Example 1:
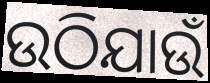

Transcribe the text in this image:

ଉଠିଯାଉଁ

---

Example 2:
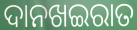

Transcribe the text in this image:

ଦାନଖଇରାତ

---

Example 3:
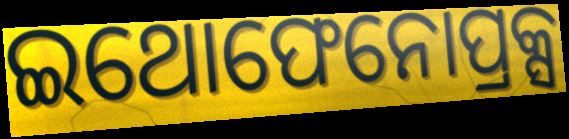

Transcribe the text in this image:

ଇଥୋଫେନୋପ୍ରକ୍ସ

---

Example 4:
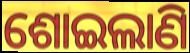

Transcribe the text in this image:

ଶୋଇଲାଣି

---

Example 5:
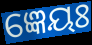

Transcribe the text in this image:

ଜ୍ଞେୟଃ